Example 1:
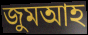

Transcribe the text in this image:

জুমআহ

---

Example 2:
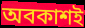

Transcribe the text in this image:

অবকাশই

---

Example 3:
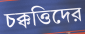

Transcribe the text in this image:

চক্কত্তিদের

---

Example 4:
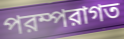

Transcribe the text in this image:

পরম্পরাগত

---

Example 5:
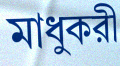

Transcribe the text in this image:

মাধুকরী